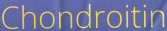
Chondroitin